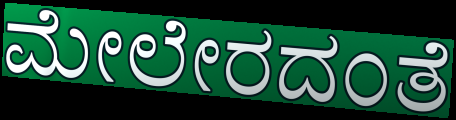
ಮೇಲೇರದಂತೆ